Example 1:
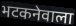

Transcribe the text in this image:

भटकनेवाला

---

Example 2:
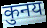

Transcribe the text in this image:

कुनय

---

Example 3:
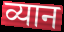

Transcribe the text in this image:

व्यान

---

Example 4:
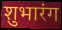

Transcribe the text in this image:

शुभारंग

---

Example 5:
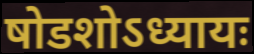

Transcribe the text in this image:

षोडशोऽध्यायः